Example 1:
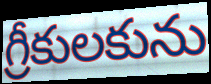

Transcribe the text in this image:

గ్రీకులకును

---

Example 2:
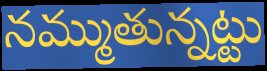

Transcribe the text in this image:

నమ్ముతున్నట్టు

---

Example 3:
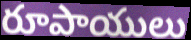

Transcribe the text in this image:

రూపాయులు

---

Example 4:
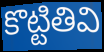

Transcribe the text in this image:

కొట్టితివి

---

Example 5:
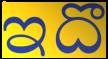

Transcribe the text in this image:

ఇదొ